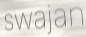
swajan